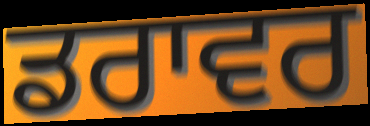
ਡਰਾਵਰ